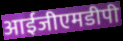
आईजीएमडीपी